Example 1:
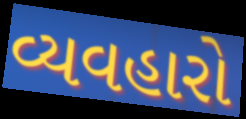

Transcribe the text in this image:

વ્યવહારો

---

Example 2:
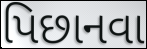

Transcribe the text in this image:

પિછાનવા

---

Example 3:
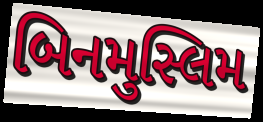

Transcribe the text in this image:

બિનમુસ્લિમ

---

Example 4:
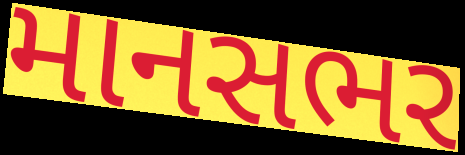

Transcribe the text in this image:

માનસભર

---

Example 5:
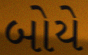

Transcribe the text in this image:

બોયે